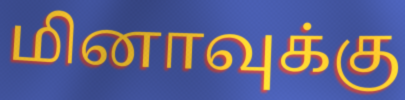
மினாவுக்கு